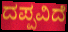
ದಪ್ಪವಿದೆ